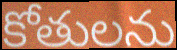
కోతులను